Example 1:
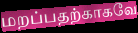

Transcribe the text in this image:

மறப்பதற்காகவே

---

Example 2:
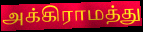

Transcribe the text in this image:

அக்கிராமத்து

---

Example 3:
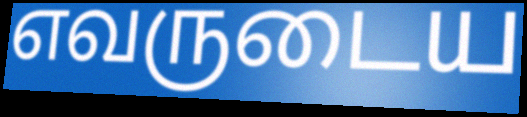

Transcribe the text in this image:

எவருடைய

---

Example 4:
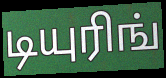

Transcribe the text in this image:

டியுரிங்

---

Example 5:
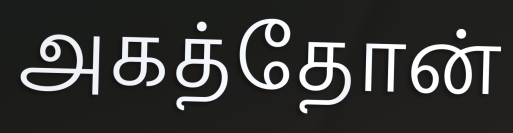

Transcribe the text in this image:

அகத்தோன்